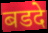
बडदे